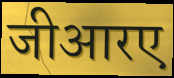
जीआरए